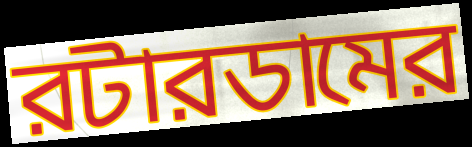
রটারডামের